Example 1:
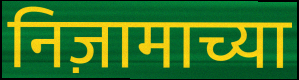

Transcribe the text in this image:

निज़ामाच्या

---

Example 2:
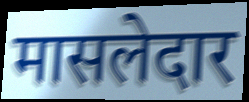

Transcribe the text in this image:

मासलेदार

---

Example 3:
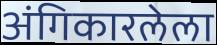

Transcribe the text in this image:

अंगिकारलेला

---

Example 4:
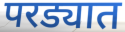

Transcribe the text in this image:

परड्यात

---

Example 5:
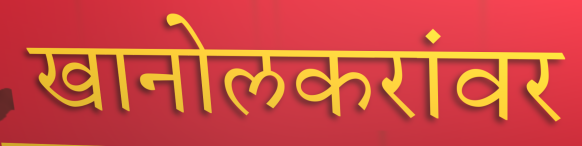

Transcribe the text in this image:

खानोलकरांवर